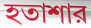
হতাশার